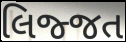
લિજ્જત